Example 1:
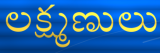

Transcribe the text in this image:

లక్ష్మణులు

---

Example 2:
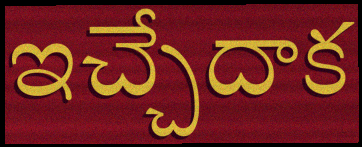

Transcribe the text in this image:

ఇచ్చేదాక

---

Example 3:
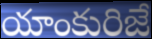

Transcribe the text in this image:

యాంకురిజే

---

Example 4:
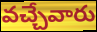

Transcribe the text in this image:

వచ్చేవారు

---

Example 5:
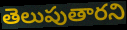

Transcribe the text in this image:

తెలుపుతారని